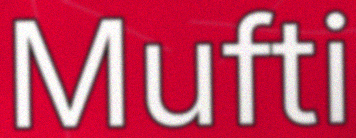
Mufti